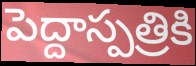
పెద్దాస్పత్రికి